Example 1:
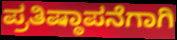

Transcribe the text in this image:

ಪ್ರತಿಷ್ಠಾಪನೆಗಾಗಿ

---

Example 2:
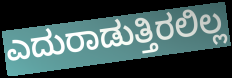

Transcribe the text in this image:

ಎದುರಾಡುತ್ತಿರಲಿಲ್ಲ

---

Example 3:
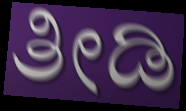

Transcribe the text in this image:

ತೀಡಿ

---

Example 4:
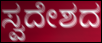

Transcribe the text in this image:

ಸ್ವದೇಶದ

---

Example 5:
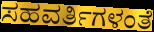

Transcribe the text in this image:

ಸಹವರ್ತಿಗಳಂತೆ